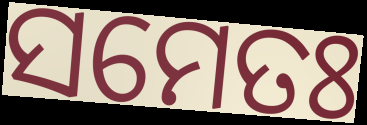
ସମେତଃ